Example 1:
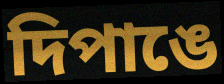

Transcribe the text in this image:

দিপাঙে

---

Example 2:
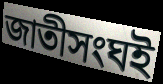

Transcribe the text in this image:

জাতীসংঘই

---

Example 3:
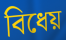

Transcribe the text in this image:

বিধেয়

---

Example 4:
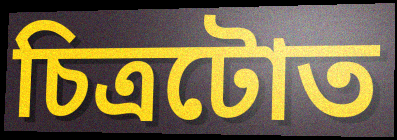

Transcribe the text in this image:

চিত্ৰটোত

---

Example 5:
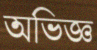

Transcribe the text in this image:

অভিজ্ঞ